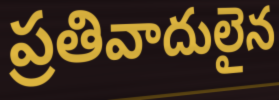
ప్రతివాదులైన